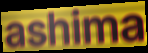
ashima